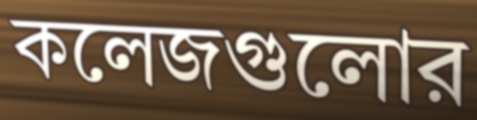
কলেজগুলোর